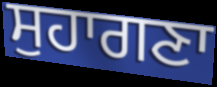
ਸੁਹਾਗਣਾ